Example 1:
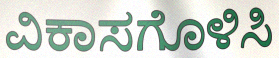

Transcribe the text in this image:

ವಿಕಾಸಗೊಳಿಸಿ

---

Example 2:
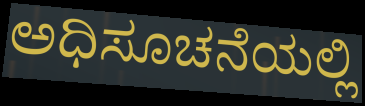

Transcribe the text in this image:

ಅಧಿಸೂಚನೆಯಲ್ಲಿ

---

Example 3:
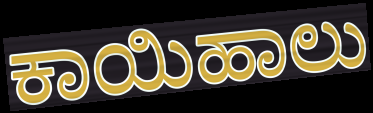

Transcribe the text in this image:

ಕಾಯಿಹಾಲು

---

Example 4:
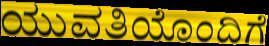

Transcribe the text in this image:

ಯುವತಿಯೊಂದಿಗೆ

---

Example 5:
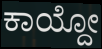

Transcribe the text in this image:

ಕಾಯ್ದೋ